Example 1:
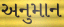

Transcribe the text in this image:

અનુમાન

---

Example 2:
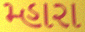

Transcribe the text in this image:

મ્હારા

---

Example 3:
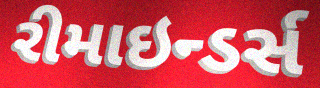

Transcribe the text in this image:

રીમાઇન્ડર્સ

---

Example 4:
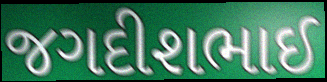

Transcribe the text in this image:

જગદીશભાઈ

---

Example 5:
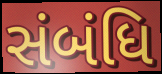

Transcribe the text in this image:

સંબંધિ